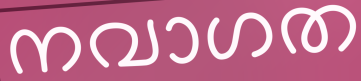
നവാഗത